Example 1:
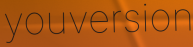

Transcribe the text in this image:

youversion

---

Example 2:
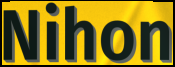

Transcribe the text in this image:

Nihon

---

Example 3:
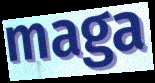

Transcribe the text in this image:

maga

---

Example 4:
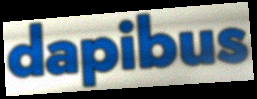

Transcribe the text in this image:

dapibus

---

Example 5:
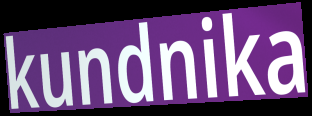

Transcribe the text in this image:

kundnika